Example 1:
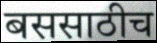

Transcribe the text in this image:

बससाठीच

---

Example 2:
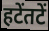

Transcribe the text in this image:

हटेंतटें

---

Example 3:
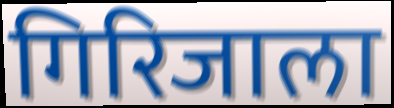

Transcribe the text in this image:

गिरिजाला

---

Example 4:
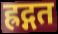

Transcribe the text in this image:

ह्रद्गत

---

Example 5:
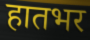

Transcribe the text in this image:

हातभर